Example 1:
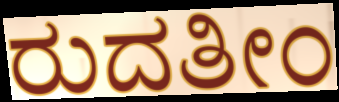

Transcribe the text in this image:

ರುದತೀಂ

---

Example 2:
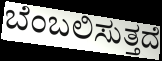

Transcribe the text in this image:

ಬೆಂಬಲಿಸುತ್ತದೆ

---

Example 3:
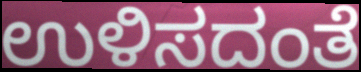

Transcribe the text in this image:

ಉಳಿಸದಂತೆ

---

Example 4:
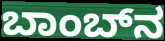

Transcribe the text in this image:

ಬಾಂಬ್‍ನ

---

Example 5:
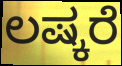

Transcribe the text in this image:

ಲಷ್ಕರೆ